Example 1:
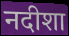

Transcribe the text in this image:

नदीशा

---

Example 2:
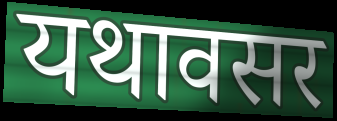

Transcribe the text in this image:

यथावसर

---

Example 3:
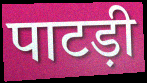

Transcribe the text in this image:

पाटड़ी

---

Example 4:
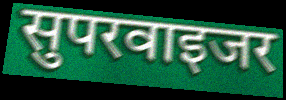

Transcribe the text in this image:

सुपरवाइजर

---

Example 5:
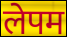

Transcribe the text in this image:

लेपम